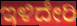
ಇಳಿದೇರಿ